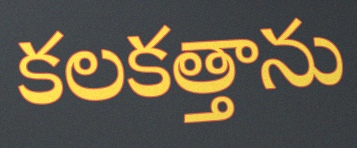
కలకత్తాను